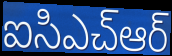
ఐసిఎచ్ఆర్